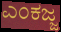
ಎಂಕಜ್ಜ